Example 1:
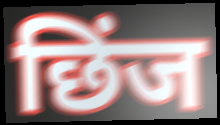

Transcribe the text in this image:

छिंज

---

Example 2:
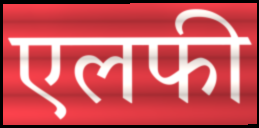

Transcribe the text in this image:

एलफी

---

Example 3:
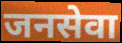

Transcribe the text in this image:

जनसेवा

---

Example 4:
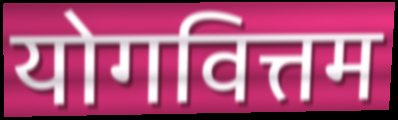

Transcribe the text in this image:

योगवित्तम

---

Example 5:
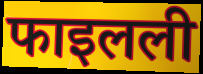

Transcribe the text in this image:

फाइलली